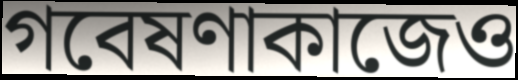
গবেষণাকাজেও